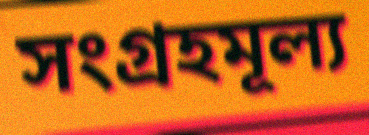
সংগ্রহমূল্য